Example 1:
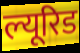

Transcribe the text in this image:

ल्यूरिड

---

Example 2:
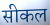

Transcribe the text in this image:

सीकल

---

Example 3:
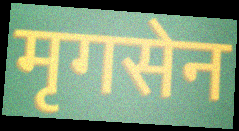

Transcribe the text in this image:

मृगसेन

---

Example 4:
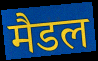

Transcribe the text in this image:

मैडल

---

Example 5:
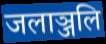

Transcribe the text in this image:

जलाञ्जलि